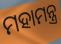
ମହାମନ୍ତ୍ର